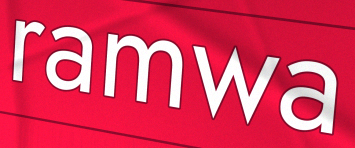
ramwa